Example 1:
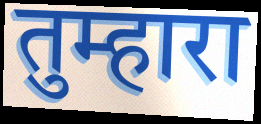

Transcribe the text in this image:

तुम्हारा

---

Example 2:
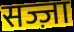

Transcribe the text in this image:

सज्ज़ा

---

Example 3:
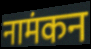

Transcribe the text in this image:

नामंकन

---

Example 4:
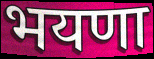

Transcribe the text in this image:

भयणा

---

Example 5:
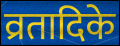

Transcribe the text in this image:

व्रतादिके